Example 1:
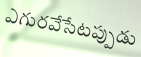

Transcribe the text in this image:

ఎగురవేసేటప్పుడు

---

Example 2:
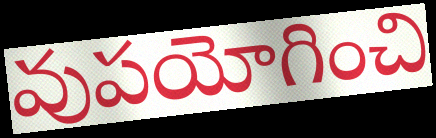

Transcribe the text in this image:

వుపయోగించి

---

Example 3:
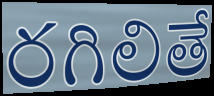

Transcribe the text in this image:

రగిలితే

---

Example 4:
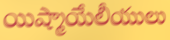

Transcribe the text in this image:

యిష్మాయేలీయులు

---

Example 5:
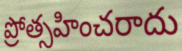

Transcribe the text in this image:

ప్రోత్సహించరాదు